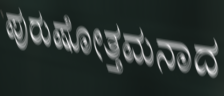
ಪುರುಷೋತ್ತಮನಾದ